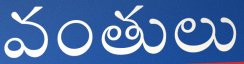
వంతులు